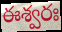
ఈశ్వరః